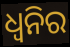
ଧ୍ବନିର